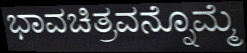
ಭಾವಚಿತ್ರವನ್ನೊಮ್ಮೆ